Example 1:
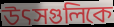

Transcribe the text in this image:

উৎসগুলিকে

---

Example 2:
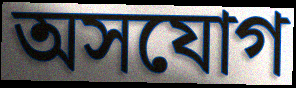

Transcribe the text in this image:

অসযোগ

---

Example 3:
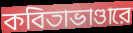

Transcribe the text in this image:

কবিতাভাণ্ডারে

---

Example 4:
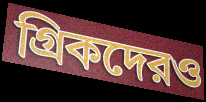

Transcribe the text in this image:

গ্রিকদেরও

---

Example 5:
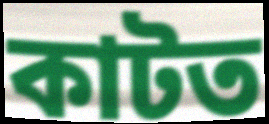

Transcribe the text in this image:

কাটত